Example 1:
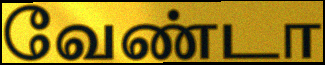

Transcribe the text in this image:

வேண்டா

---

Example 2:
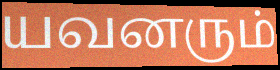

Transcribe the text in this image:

யவனரும்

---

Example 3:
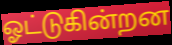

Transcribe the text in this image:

ஓட்டுகின்றன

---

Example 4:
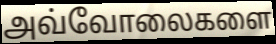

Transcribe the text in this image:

அவ்வோலைகளை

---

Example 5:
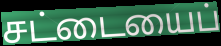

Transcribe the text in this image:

சட்டையைப்